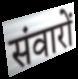
संवारों